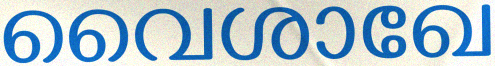
വൈശാഖേ